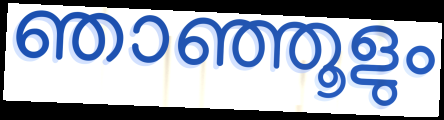
ഞാഞ്ഞൂളും